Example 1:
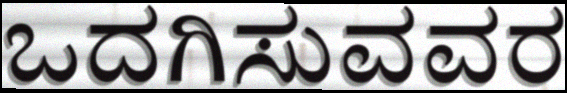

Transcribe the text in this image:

ಒದಗಿಸುವವರ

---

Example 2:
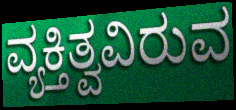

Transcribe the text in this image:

ವ್ಯಕ್ತಿತ್ವವಿರುವ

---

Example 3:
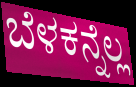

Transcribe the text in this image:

ಬೆಳಕನ್ನೆಲ್ಲ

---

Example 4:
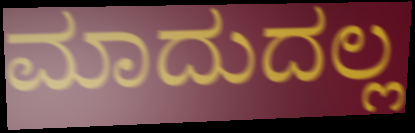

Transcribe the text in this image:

ಮಾದುದಲ್ಲ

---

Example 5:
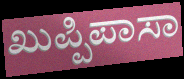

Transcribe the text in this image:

ಖುಪ್ಪಿಪಾಸಾ